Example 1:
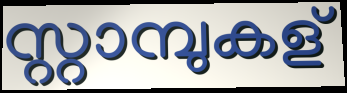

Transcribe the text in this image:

സ്റ്റാമ്പുകള്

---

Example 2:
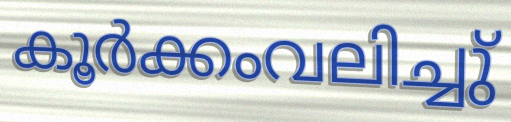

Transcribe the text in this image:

കൂർക്കംവലിച്ചു്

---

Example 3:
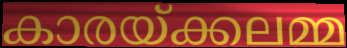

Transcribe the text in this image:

കാരയ്ക്കലമ്മ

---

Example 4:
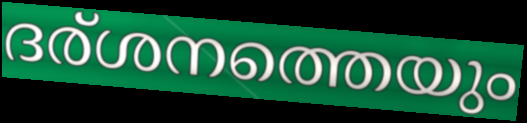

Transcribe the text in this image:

ദര്ശനത്തെയും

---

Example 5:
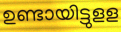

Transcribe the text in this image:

ഉണ്ടായിട്ടുളള